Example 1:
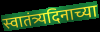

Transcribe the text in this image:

स्वातंत्र्यदिनाच्या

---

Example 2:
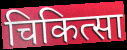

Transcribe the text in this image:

चिकित्सा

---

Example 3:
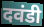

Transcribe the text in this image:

दवंडी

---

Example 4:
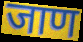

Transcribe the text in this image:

जाण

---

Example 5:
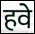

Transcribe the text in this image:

हवे